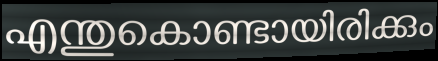
എന്തുകൊണ്ടായിരിക്കും